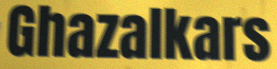
Ghazalkars